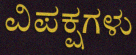
ವಿಪಕ್ಷಗಳು